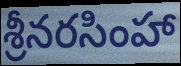
శ్రీనరసింహా